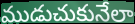
ముడుచుకునేలా